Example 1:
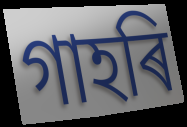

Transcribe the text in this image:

গাহৰি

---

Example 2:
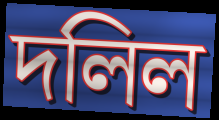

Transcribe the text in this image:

দলিল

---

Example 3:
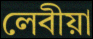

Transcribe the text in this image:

লেবীয়া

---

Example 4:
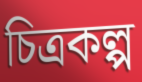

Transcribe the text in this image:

চিত্ৰকল্প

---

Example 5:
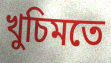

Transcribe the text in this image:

খুচিমতে